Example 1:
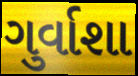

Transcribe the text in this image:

ગુર્વાશા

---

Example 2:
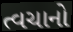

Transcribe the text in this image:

ત્વચાનો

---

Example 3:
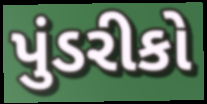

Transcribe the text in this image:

પુંડરીકો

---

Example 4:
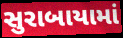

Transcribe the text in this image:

સુરાબાયામાં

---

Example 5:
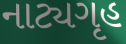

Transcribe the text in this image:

નાટ્યગૃહ